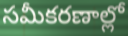
సమీకరణాల్లో